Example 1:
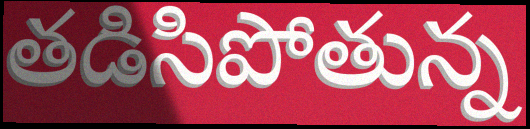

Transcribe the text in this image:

తడిసిపోతున్న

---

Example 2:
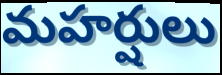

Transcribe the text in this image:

మహర్షులు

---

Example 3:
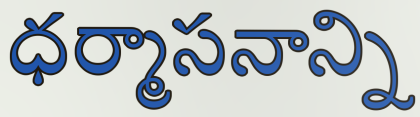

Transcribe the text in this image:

ధర్మాసనాన్ని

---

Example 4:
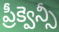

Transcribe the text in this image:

ప్రీక్వెన్సీ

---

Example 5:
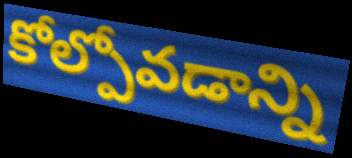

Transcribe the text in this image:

కోల్పోవడాన్ని